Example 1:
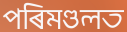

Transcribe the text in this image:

পৰিমণ্ডলত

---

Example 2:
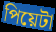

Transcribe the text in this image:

পিয়েটা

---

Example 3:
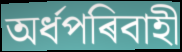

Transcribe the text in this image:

অৰ্ধপৰিবাহী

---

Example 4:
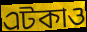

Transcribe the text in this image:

এটকাও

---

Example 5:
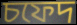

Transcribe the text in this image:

চফেদ